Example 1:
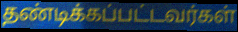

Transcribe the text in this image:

தண்டிக்கப்பட்டவர்கள்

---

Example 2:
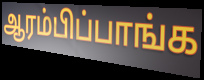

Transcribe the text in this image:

ஆரம்பிப்பாங்க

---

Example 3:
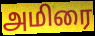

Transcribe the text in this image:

அமிரை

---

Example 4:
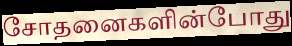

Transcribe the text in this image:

சோதனைகளின்போது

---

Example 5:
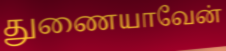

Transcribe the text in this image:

துணையாவேன்